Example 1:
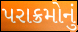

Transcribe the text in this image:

પરાક્રમોનું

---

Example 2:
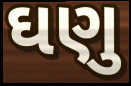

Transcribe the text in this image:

ઘણુ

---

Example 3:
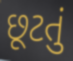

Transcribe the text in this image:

છૂટતું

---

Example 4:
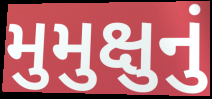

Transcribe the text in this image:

મુમુક્ષુનું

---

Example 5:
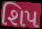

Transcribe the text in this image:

શિપ